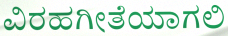
ವಿರಹಗೀತೆಯಾಗಲಿ